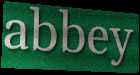
abbey